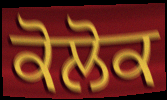
ਕੋਲੋਕ